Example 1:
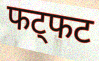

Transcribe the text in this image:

फट्फट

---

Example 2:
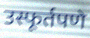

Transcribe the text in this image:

उस्फूर्तपणे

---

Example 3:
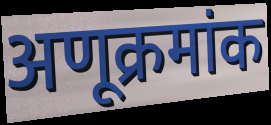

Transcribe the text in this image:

अणूक्रमांक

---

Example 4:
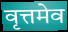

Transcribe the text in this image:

वृत्तमेव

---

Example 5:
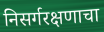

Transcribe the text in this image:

निसर्गरक्षणाचा